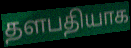
தளபதியாக